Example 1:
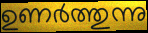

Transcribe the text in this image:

ഉണർത്തുന്നു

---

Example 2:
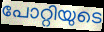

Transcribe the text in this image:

പോറ്റിയുടെ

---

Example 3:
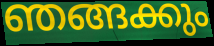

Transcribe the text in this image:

ഞങ്ങക്കും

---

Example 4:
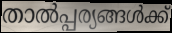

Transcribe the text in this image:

താൽപ്പര്യങ്ങൾക്ക്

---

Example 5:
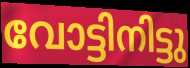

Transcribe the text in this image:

വോട്ടിനിട്ടു